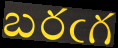
బరఁగ